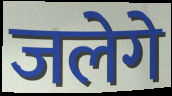
जलेगे